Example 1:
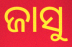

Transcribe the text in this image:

ଜାସୁ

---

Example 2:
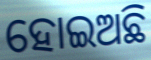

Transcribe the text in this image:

ହୋଇଅଛି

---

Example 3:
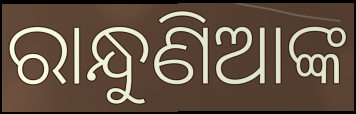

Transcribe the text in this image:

ରାନ୍ଧୁଣିଆଙ୍କ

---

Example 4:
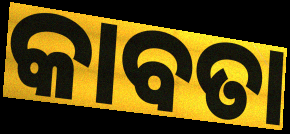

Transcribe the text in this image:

କାବତା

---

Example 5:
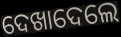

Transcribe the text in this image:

ଦେଖାଦେଲେ